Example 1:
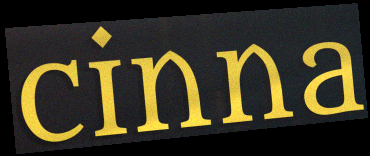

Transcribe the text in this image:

cinna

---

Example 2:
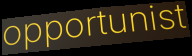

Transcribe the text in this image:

opportunist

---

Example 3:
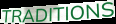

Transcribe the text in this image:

TRADITIONS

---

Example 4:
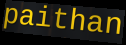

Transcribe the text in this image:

paithan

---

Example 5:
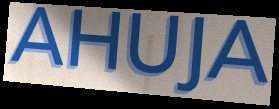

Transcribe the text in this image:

AHUJA